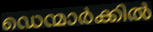
ഡെന്മാർക്കിൽ